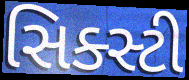
સિક્સ્ટી